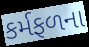
કર્મફળના